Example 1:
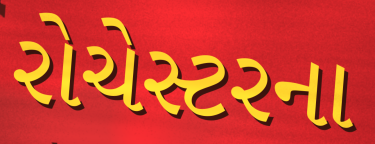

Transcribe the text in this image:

રોચેસ્ટરના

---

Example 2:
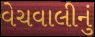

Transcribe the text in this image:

વેચવાલીનું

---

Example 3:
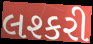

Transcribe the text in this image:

લશ્કરી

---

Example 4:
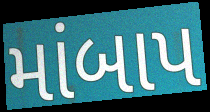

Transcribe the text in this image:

માંબાપ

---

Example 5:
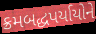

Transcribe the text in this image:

ક્રમબદ્ધપર્યાયોને